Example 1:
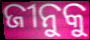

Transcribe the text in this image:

ଜୀନୁକୁ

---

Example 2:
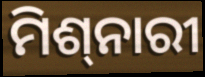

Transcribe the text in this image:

ମିଶ୍‍ନାରୀ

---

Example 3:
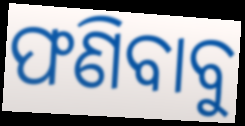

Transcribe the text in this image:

ଫଣିବାବୁ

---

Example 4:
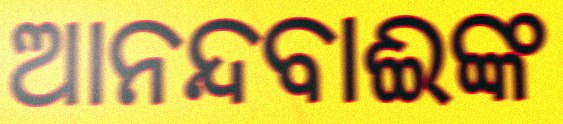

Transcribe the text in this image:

ଆନନ୍ଦବାଈଙ୍କ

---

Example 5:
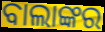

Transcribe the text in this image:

ବାଲାଙ୍କର